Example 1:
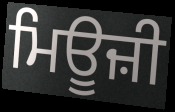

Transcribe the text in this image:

ਮਿਊਜ਼ੀ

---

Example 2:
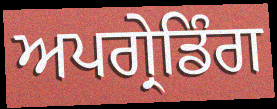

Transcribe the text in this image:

ਅਪਗ੍ਰੇਡਿੰਗ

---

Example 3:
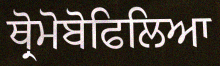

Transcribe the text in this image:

ਥ੍ਰੋਮੋਬੋਫਿਲਿਆ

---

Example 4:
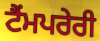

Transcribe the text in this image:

ਟੈਂਮਪਰੇਰੀ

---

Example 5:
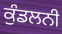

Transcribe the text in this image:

ਕੁੰਡਲਨੀ